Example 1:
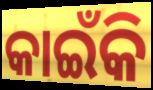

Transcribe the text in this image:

କାଇଁକି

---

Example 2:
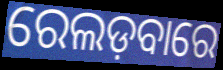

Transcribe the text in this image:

ରେଲଡ଼ବାରେ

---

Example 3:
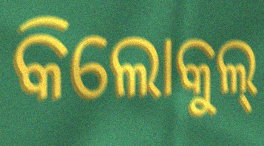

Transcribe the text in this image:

କିଲୋକୁଲ୍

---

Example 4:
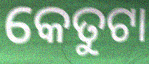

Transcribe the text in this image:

କେତୁଟା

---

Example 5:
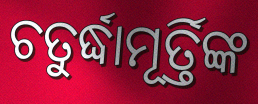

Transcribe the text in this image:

ଚତୁର୍ଦ୍ଧାମୂର୍ତ୍ତିଙ୍କ